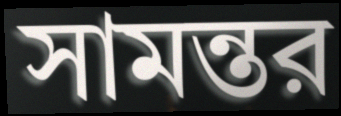
সামন্তর